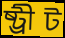
ষ্ট্ৰীট